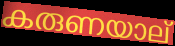
കരുണയാല്